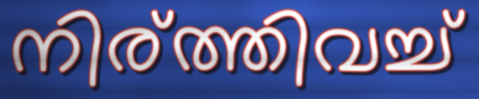
നിര്ത്തിവച്ച്